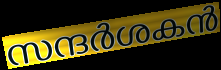
സന്ദർശകൻ